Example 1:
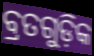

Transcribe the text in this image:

ବ୍ରତଗୁଡ଼ିକ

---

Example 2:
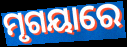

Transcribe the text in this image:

ମୃଗୟାରେ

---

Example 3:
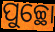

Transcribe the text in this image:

ପୁଚ୍ଛୋ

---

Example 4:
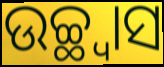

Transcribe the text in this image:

ଉଚ୍ଛ୍ୱାସ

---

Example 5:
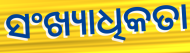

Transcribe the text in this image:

ସଂଖ୍ୟାଧିକତା